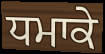
ਧਮਾਕੇ